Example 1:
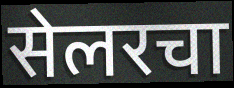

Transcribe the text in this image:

सेलरचा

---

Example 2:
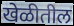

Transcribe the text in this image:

खेळीतील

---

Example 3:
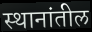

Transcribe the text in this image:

स्थानांतील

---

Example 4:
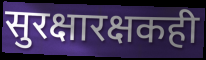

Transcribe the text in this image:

सुरक्षारक्षकही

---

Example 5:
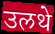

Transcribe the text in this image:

उलथे